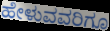
ಹೇಳುವವರಿಗೂ